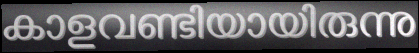
കാളവണ്ടിയായിരുന്നു